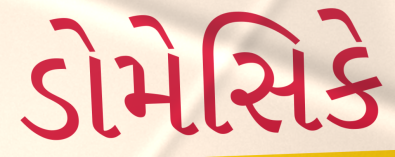
ડોમેસિકે